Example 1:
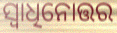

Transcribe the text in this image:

ସ୍ୱାଧିନୋତ୍ତର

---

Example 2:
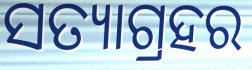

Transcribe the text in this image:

ସତ୍ୟାଗ୍ରହର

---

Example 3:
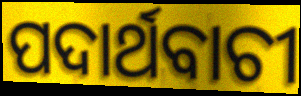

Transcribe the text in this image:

ପଦାର୍ଥବାଚୀ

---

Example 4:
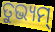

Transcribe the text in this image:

ତୁଭ୍ୟମ୍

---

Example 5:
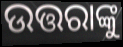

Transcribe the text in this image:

ଉତ୍ତରାଙ୍କୁ